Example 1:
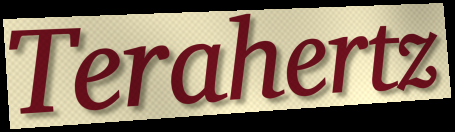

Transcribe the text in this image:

Terahertz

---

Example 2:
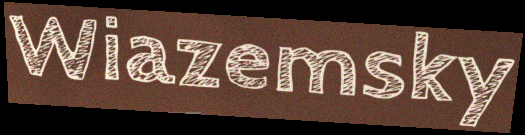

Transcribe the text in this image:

Wiazemsky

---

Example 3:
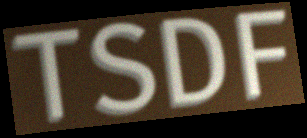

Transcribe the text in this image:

TSDF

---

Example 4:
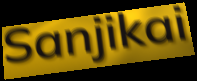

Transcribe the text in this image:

Sanjikai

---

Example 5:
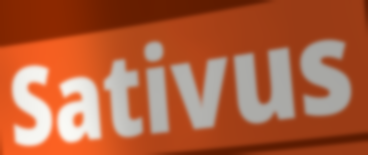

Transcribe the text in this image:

Sativus